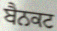
ਬੈਨਕਟ